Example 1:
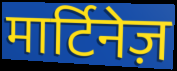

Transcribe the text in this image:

मार्टिनेज़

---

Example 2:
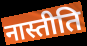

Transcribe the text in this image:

नास्तीति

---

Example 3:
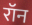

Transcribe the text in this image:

रॉन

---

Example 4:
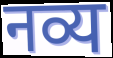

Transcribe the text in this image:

नव्य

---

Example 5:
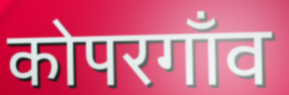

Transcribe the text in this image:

कोपरगाँव